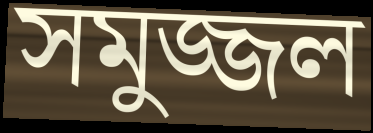
সমুজ্জল